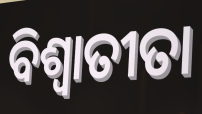
ବିଶ୍ଵାତୀତା